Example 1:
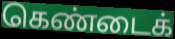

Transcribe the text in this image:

கெண்டைக்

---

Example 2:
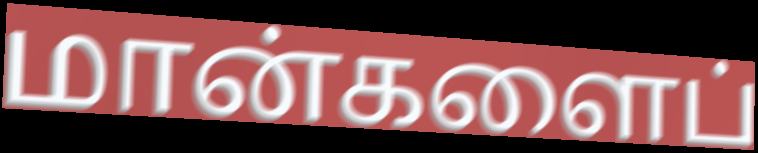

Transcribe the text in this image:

மான்களைப்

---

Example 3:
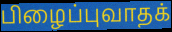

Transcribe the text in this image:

பிழைப்புவாதக்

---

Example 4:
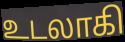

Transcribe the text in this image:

உடலாகி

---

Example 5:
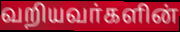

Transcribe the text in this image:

வறியவர்களின்